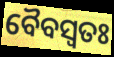
ବୈବସ୍ଵତଃ